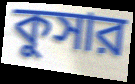
কুসার